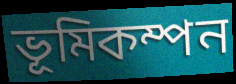
ভূমিকম্পন